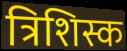
त्रिशिस्क